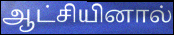
ஆட்சியினால்